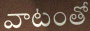
వాటంతో